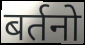
बर्तनो